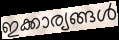
ഇക്കാര്യങ്ങൾ